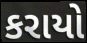
કરાયો